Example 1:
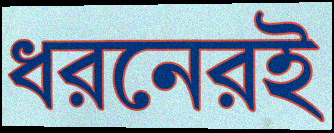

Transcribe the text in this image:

ধরনেরই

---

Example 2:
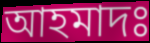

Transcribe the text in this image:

আহমাদঃ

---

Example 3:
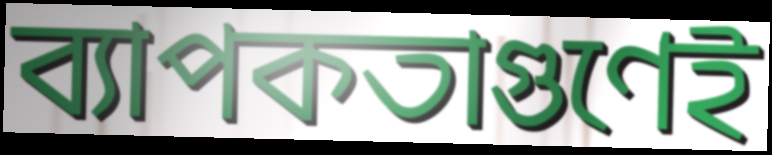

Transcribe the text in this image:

ব্যাপকতাগুণেই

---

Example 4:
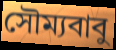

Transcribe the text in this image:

সৌম্যবাবু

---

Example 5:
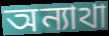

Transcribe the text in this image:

অন্যাথা